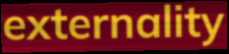
externality